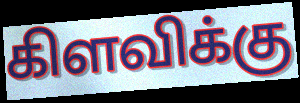
கிளவிக்கு